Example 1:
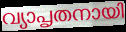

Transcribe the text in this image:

വ്യാപൃതനായി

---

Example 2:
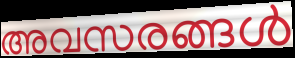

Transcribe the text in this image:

അവസരങ്ങൾ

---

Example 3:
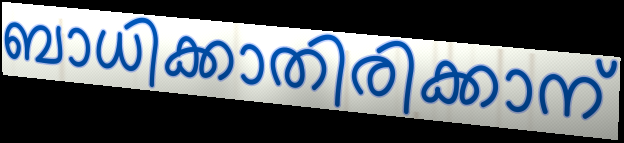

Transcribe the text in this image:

ബാധിക്കാതിരിക്കാന്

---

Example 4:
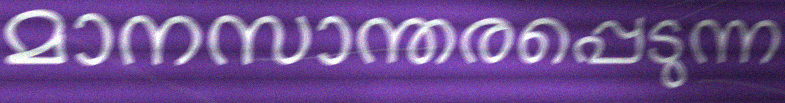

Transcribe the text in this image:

മാനസാന്തരപ്പെടുന്ന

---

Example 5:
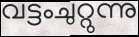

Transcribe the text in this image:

വട്ടംചുറ്റുന്നു